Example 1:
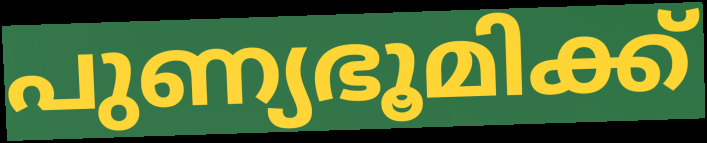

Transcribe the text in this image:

പുണ്യഭൂമിക്ക്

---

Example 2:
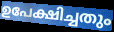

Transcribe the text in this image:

ഉപേക്ഷിച്ചതും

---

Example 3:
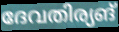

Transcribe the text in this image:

ദേവതിര്യങ്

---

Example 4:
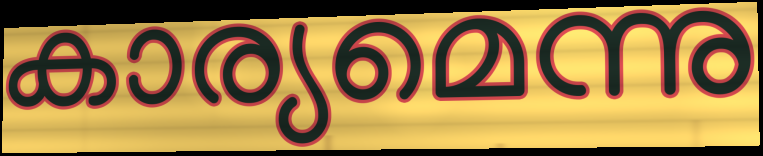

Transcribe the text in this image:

കാര്യമെന്നു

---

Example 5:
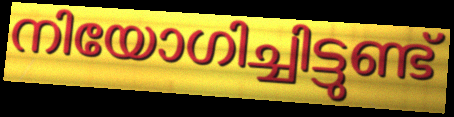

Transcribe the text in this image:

നിയോഗിച്ചിട്ടുണ്ട്